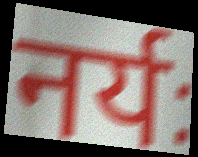
नर्यः